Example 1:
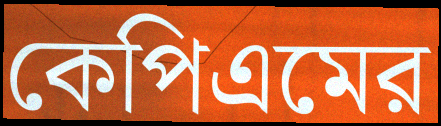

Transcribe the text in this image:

কেপিএমের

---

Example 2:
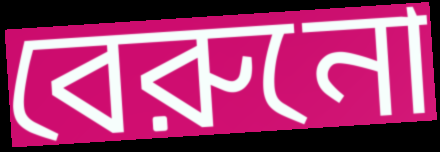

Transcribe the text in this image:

বেরুনো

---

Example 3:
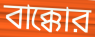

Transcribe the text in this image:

বাক্কোর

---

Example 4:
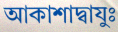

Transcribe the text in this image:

আকাশাদ্বাযুঃ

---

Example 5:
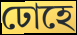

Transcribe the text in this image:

ঢোহে